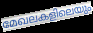
മേഖലകളിലെയും